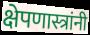
क्षेपणास्त्रांनी